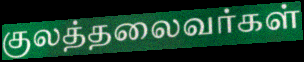
குலத்தலைவர்கள்